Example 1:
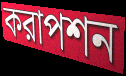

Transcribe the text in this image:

করাপশন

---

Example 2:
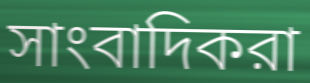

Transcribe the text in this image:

সাংবাদিকরা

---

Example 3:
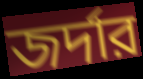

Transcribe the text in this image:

জর্দার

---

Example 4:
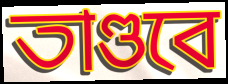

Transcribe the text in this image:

তাণ্ডবে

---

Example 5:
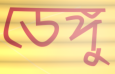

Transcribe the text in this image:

ডেঙ্গু